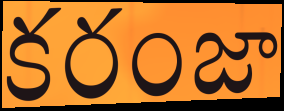
కరంజా